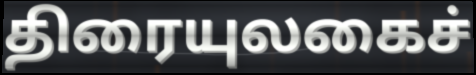
திரையுலகைச்